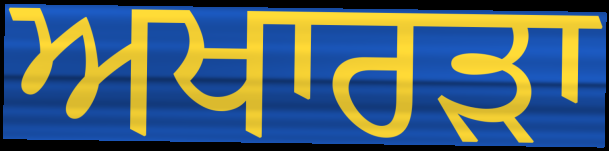
ਅਖਾਰੜਾ